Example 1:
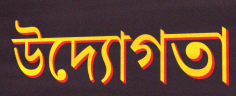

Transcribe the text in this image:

উদ্যোগতা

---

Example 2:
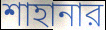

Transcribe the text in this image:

শাহানার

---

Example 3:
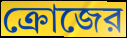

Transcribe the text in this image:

ক্রোজের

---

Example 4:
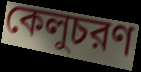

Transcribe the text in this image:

কেলুচরণ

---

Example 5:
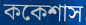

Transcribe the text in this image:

ককেশাস